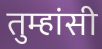
तुम्हांसी